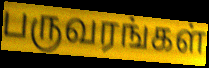
பருவரங்கள்